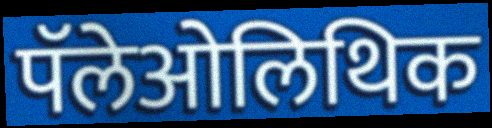
पॅलेओलिथिक